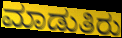
ಮಾಡುತಿರು